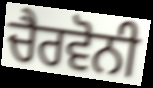
ਚੈਰਵੋਨੀ